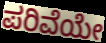
ಪರಿವೆಯೇ